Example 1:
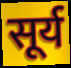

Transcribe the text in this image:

सूर्य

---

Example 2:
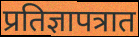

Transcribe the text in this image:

प्रतिज्ञापत्रात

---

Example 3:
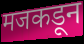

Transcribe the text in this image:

मजकडून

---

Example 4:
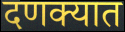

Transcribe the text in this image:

दणक्यात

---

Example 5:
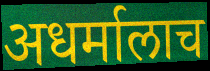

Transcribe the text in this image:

अधर्मालाच